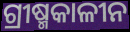
ଗ୍ରୀଷ୍ମକାଳୀନ